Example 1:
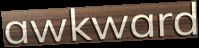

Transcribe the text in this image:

awkward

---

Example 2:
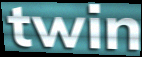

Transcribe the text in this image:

twin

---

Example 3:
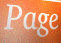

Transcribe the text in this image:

Page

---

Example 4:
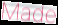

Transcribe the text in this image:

Made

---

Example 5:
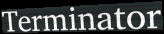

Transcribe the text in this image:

Terminator